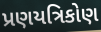
પ્રણયત્રિકોણ